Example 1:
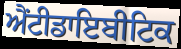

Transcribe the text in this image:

ਐਂਟੀਡਾਇਬੀਟਿਕ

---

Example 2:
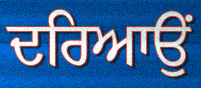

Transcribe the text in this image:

ਦਰਿਆਉਂ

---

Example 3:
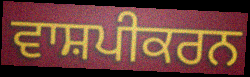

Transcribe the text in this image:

ਵਾਸ਼ਪੀਕਰਨ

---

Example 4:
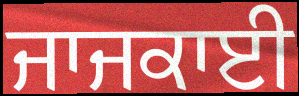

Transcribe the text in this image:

ਜਾਜਕਾਈ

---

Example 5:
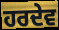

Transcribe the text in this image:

ਹਰਦੇਵ